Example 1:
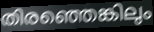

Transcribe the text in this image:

തിരഞ്ഞെങ്കിലും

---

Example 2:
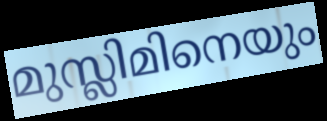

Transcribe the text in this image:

മുസ്ലിമിനെയും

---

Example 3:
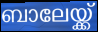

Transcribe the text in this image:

ബാലേയ്ക്ക്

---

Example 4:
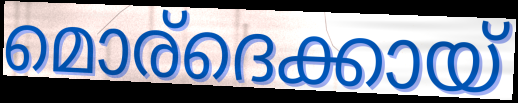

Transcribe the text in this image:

മൊര്ദെക്കായ്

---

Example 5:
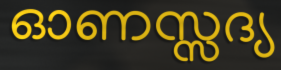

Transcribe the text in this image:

ഓണസ്സദ്യ